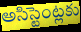
అసిస్టెంట్లకు